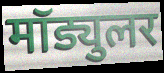
मॉड्युलर